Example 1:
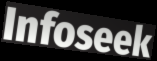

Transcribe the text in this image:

Infoseek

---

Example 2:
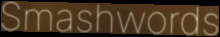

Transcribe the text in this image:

Smashwords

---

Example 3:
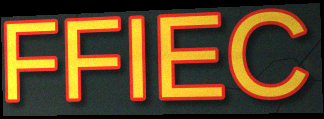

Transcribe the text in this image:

FFIEC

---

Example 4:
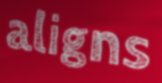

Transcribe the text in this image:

aligns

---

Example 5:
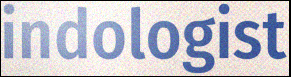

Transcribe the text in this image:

indologist